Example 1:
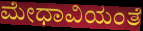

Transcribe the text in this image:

ಮೇಧಾವಿಯಂತೆ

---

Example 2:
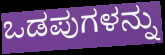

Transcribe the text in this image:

ಒಡಪುಗಳನ್ನು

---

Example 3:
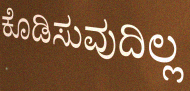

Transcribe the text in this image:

ಕೊಡಿಸುವುದಿಲ್ಲ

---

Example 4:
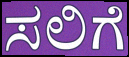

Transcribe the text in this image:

ಸಲಿಗೆ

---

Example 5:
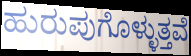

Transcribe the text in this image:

ಹುರುಪುಗೊಳ್ಳುತ್ತವೆ